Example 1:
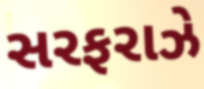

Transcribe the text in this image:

સરફરાઝે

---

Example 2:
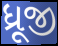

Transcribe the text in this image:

ધ્રૂજી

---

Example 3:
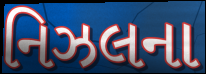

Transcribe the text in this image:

નિઝલના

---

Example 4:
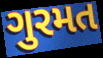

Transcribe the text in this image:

ગુરમત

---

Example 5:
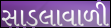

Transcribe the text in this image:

સાડલાવાળી